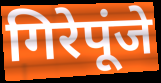
गिरेपूंजे